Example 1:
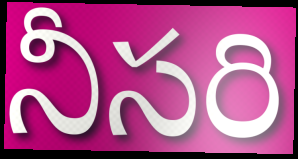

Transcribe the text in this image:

నీసరి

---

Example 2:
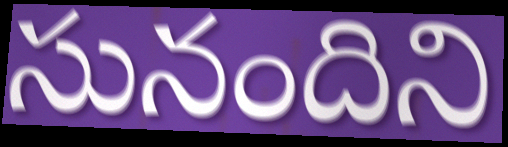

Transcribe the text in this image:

సునందిని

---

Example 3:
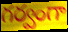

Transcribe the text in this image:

గర్వంగా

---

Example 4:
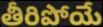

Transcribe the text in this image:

తీరిపోయే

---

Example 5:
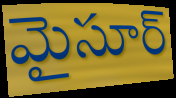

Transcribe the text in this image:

మైసూర్